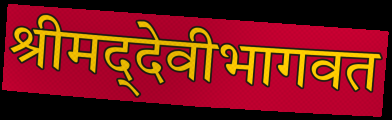
श्रीमद्‌देवीभागवत